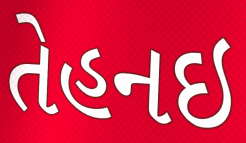
તેહનઇ